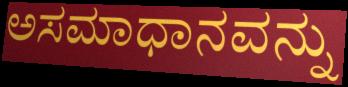
ಅಸಮಾಧಾನವನ್ನು